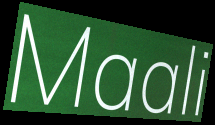
Maali